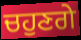
ਚਹੁਣਗੇ